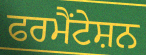
ਫਰਮੈਂਟੇਸ਼ਨ